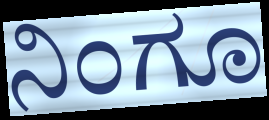
ನಿಂಗೂ